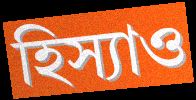
হিস্যাও